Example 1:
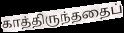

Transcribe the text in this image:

காத்திருந்ததைப்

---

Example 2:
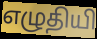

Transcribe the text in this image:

எழுதியி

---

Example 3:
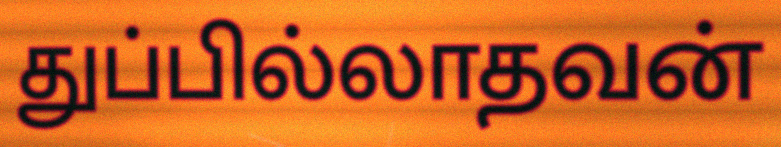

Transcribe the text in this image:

துப்பில்லாதவன்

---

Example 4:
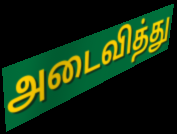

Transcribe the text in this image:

அடைவித்து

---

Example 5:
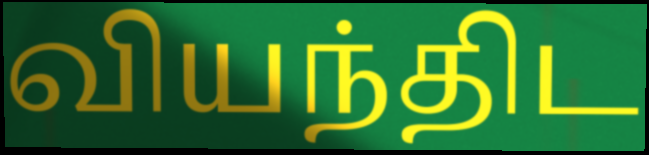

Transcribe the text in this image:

வியந்திட